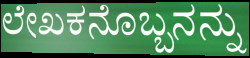
ಲೇಖಕನೊಬ್ಬನನ್ನು